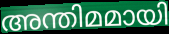
അന്തിമമായി